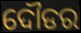
ଦୌଡର